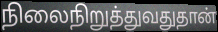
நிலைநிறுத்துவதுதான்